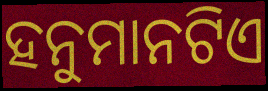
ହନୁମାନଟିଏ